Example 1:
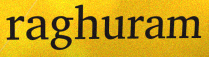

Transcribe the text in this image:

raghuram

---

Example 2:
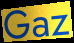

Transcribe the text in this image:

Gaz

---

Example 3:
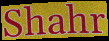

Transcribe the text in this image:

Shahr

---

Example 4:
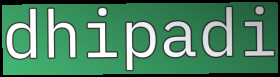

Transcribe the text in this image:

dhipadi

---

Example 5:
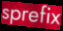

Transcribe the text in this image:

sprefix